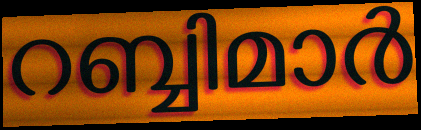
റബ്ബിമാർ